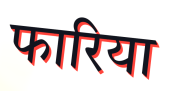
फारिया